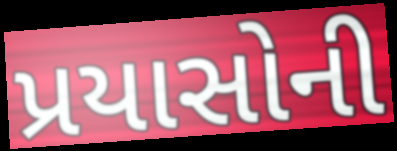
પ્રયાસોની